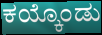
ಕಯ್ಕೊಂಡು